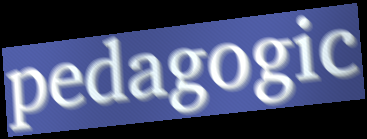
pedagogic